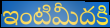
ఇంటిమీదకి